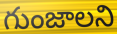
గుంజాలని